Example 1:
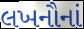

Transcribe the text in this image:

લખનૌનાં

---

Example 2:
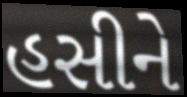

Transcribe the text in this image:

હસીને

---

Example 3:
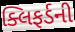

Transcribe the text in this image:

ક્લિફર્ડની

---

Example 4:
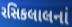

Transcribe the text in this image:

રસિકલાલનાં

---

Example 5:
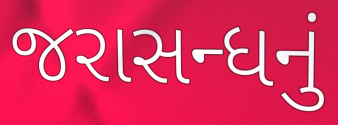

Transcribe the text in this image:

જરાસન્ધનું